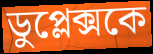
ডুপ্লেক্সকে